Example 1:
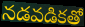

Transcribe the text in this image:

నడవడికతో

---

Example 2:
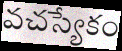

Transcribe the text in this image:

వచస్యేకం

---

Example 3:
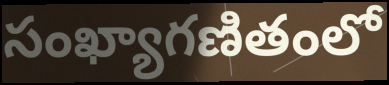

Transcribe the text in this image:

సంఖ్యాగణితంలో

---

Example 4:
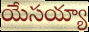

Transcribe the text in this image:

యేసయ్యా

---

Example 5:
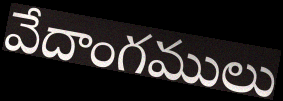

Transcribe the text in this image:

వేదాంగములు